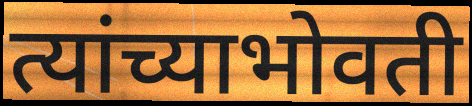
त्यांच्याभोवती